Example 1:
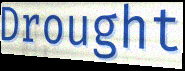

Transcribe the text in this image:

Drought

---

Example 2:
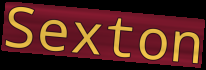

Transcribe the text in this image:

Sexton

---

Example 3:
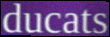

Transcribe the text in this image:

ducats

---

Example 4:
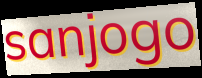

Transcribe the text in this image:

sanjogo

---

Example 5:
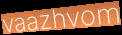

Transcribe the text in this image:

vaazhvom